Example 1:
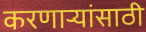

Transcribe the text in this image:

करणार्‍यांसाठी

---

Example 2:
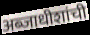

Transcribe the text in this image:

अब्जाधीशांची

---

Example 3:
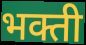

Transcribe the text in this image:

भक्ती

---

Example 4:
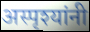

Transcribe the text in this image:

अस्पृश्यांनी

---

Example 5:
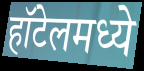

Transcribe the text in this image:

हॉटेलमध्ये